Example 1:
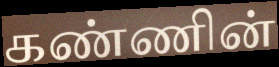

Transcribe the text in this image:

கண்ணின்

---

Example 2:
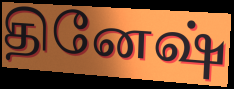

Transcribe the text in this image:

தினேஷ்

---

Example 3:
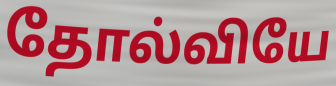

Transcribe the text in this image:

தோல்வியே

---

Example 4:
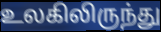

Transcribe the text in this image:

உலகிலிருந்து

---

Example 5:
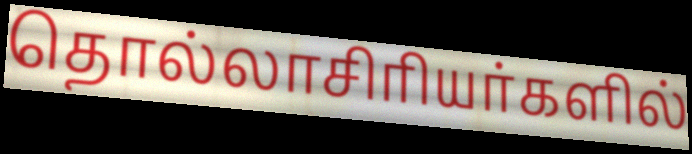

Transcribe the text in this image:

தொல்லாசிரியர்களில்